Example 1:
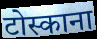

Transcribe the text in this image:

टोस्काना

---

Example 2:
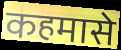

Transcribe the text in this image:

कहमासे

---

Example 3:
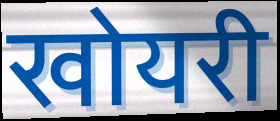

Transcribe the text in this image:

खोयरी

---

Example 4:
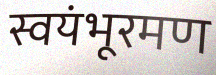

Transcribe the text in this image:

स्वयंभूरमण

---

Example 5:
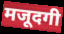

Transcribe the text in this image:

मजूदगी